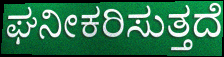
ಘನೀಕರಿಸುತ್ತದೆ